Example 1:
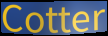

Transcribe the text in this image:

Cotter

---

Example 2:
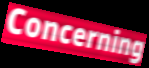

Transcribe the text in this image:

Concerning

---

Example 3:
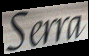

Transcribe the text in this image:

Serra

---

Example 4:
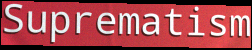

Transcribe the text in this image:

Suprematism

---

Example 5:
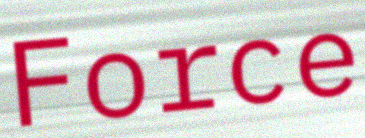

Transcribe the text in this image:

Force